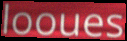
looues